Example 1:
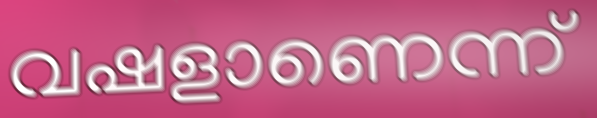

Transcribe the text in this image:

വഷളാണെന്ന്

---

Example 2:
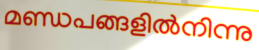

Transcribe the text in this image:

മണ്ഡപങ്ങളിൽനിന്നു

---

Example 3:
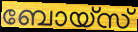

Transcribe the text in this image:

ബോയ്സ്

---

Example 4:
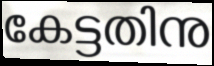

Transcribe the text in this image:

കേട്ടതിനു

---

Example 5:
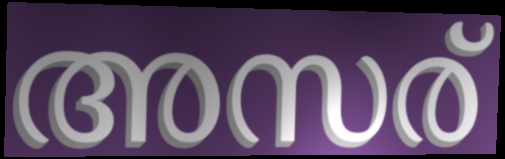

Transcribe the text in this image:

അസര്